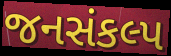
જનસંકલ્પ